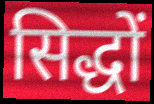
सिद्धों